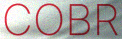
COBR